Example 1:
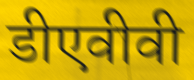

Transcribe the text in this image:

डीएवीवी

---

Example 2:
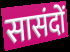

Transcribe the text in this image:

सासंदों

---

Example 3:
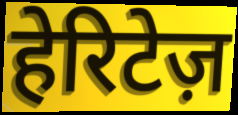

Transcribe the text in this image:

हेरिटेज़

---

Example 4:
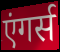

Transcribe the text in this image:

एंगर्स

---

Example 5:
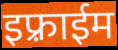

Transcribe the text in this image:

इफ़्राईम